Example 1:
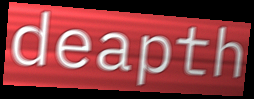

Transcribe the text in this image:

deapth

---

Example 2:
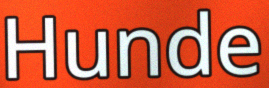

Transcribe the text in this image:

Hunde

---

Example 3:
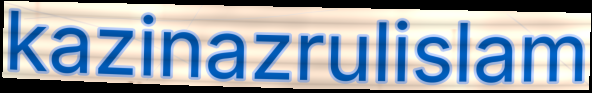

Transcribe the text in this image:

kazinazrulislam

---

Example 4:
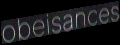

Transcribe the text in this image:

obeisances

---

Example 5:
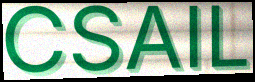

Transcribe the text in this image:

CSAIL